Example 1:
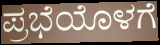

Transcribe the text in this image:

ಪ್ರಭೆಯೊಳಗೆ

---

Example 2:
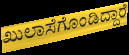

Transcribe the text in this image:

ಖುಲಾಸೆಗೊಂಡಿದ್ದಾರೆ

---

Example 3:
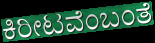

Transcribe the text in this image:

ಕಿರೀಟವೆಂಬಂತೆ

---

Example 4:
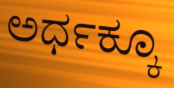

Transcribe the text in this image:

ಅರ್ಧಕ್ಕೂ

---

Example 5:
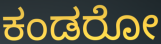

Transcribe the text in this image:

ಕಂಡರೋ